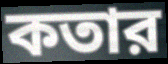
কতার